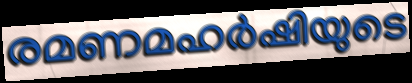
രമണമഹർഷിയുടെ